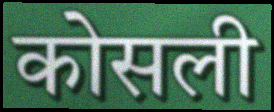
कोसली